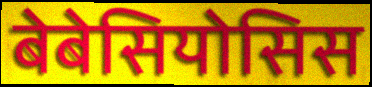
बेबेसियोसिस